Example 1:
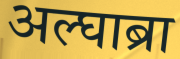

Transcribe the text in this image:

अल्घाब्रा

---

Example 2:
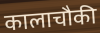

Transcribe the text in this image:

कालाचौकी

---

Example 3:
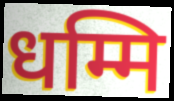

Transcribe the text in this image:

धम्मि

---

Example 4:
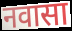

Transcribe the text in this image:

नवासा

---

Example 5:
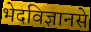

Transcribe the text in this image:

भेदविज्ञानसे